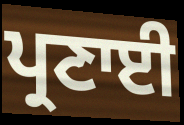
ਪ੍ਰਣਾਈ